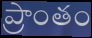
ప్రాంతం